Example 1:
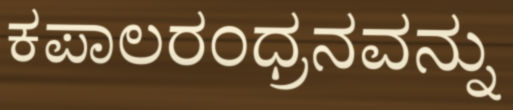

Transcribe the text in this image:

ಕಪಾಲರಂಧ್ರನವನ್ನು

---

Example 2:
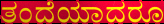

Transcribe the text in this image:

ತಂದೆಯಾದರೂ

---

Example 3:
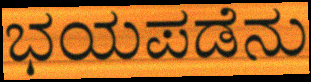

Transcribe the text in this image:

ಭಯಪಡೆನು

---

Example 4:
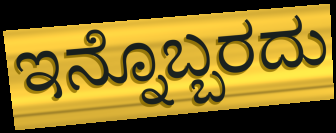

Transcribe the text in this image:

ಇನ್ನೊಬ್ಬರದು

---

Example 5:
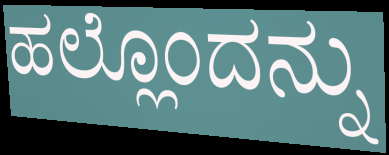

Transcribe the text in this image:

ಹಲ್ಲೊಂದನ್ನು